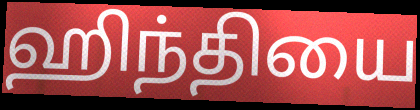
ஹிந்தியை